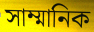
সাম্মানিক